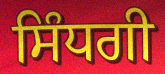
ਸਿੰਧਗੀ